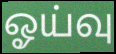
ஓய்வு